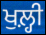
ਖੁਲ਼੍ਹੀ